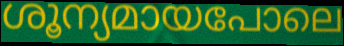
ശൂന്യമായപോലെ